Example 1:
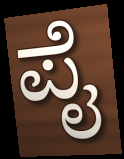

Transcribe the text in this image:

ಪೈ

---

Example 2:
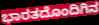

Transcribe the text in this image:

ಭಾರತದೊಂದಿಗಿನ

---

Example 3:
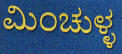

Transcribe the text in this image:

ಮಿಂಚುಳ್ಳ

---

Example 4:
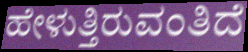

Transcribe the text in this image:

ಹೇಳುತ್ತಿರುವಂತಿದೆ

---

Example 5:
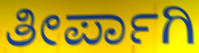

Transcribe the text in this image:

ತೀರ್ಪಾಗಿ